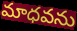
మాధవను